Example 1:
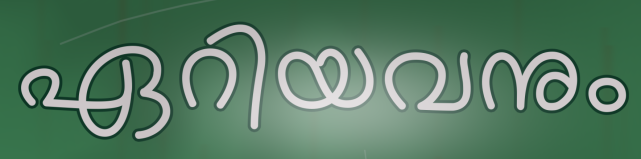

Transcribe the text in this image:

ഏറിയവനും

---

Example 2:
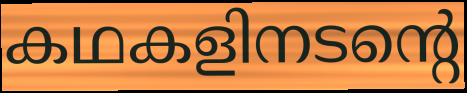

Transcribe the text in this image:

കഥകളിനടന്റെ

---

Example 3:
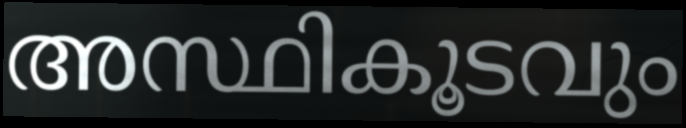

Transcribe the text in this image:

അസ്ഥികൂടവും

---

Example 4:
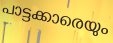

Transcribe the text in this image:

പാട്ടക്കാരെയും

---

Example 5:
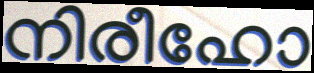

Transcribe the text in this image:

നിരീഹോ